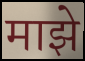
माझे